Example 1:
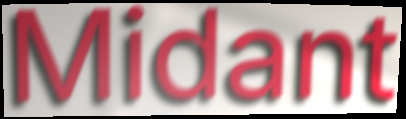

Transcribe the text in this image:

Midant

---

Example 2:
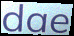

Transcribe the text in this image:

dae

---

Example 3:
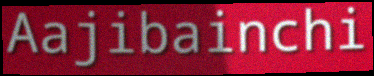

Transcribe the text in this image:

Aajibainchi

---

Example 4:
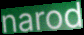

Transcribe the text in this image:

narod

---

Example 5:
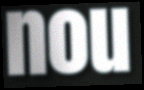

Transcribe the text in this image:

nou